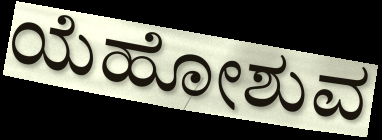
ಯೆಹೋಶುವ